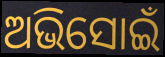
ଅଭିସୋଇଁ